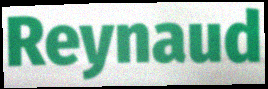
Reynaud